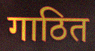
गाठित